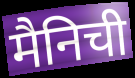
मैनिची